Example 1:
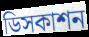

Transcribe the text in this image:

ডিসকাশন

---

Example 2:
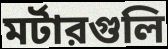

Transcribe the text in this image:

মর্টারগুলি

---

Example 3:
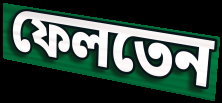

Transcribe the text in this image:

ফেলতেন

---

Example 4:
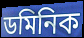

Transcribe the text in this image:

ডমিনিক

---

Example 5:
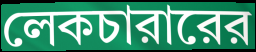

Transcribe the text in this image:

লেকচারারের